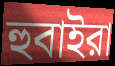
হুবাইরা